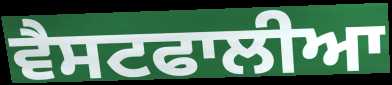
ਵੈਸਟਫਾਲੀਆ